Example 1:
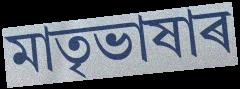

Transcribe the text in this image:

মাতৃভাষাৰ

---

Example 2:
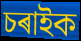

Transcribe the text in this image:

চৰাইক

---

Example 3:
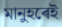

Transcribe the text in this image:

মানুহৰেই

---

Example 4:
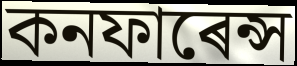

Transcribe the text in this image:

কনফাৰেন্স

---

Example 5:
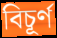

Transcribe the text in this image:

বিচূৰ্ণ